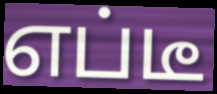
எப்டீ